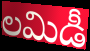
లమిడీ